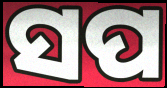
ସପ